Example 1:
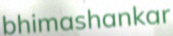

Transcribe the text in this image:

bhimashankar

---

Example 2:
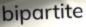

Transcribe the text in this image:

bipartite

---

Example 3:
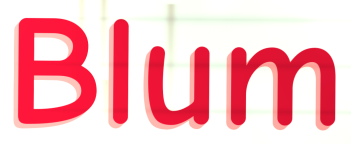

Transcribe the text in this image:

Blum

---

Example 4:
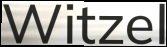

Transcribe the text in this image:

Witzel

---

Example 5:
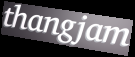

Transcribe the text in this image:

thangjam